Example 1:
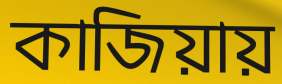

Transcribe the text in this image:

কাজিয়ায়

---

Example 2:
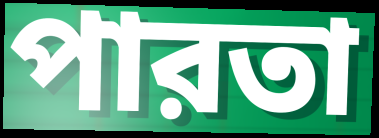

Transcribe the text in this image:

পারতা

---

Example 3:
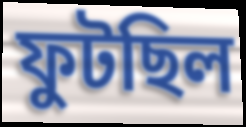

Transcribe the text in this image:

ফুটছিল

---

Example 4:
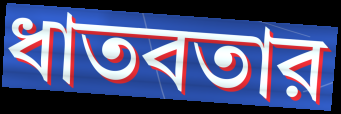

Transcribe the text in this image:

ধাতবতার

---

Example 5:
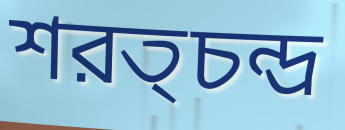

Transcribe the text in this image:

শরত্চন্দ্র